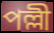
পল্লী